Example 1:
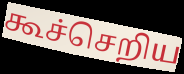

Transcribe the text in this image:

கூச்செறிய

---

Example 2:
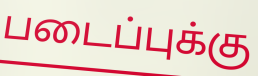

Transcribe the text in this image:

படைப்புக்கு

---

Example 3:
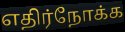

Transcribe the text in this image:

எதிர்நோக்க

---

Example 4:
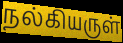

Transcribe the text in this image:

நல்கியருள்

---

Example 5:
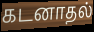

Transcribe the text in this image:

கடனாதல்